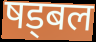
षड्बल